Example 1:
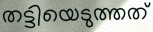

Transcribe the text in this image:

തട്ടിയെടുത്തത്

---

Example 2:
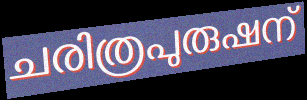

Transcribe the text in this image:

ചരിത്രപുരുഷന്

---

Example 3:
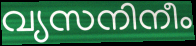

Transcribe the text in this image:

വ്യസനിനീം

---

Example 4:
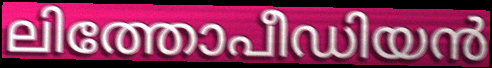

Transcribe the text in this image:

ലിത്തോപീഡിയൻ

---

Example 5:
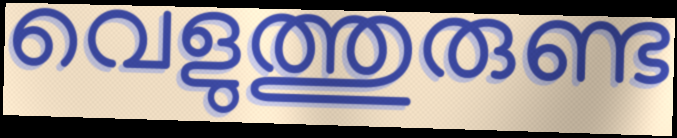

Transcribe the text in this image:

വെളുത്തുരുണ്ട